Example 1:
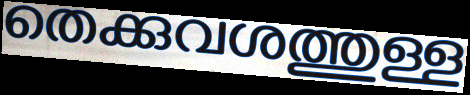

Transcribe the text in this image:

തെക്കുവശത്തുള്ള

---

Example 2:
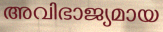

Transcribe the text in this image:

അവിഭാജ്യമായ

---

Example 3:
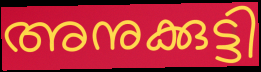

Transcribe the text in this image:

അനുക്കുട്ടി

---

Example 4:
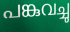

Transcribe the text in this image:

പങ്കുവച്ചു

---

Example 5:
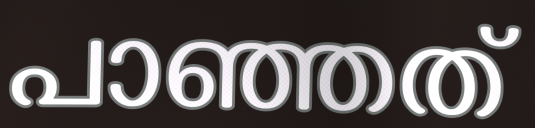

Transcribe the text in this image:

പാഞ്ഞത്